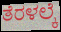
ತೆರಳಲ್ಕೆ